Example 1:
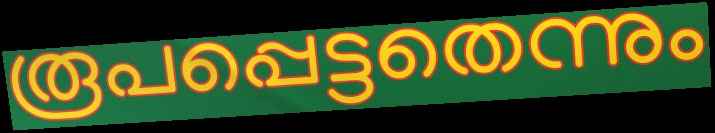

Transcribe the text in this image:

രൂപപ്പെട്ടതെന്നും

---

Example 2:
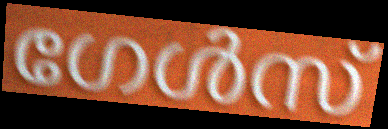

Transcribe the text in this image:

ഗേൾസ്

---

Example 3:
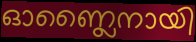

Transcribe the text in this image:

ഓണ്ലൈനായി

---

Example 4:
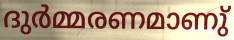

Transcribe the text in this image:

ദുർമ്മരണമാണു്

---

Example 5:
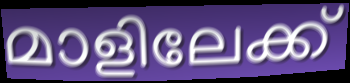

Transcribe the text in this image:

മാളിലേക്ക്